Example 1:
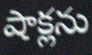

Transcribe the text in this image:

షాక్లను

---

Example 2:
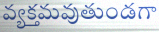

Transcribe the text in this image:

వ్యక్తమవుతుండగా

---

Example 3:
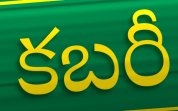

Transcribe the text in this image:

కబరీ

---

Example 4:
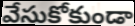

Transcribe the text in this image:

వేసుకోకుండా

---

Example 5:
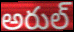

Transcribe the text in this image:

అరుల్